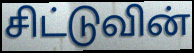
சிட்டுவின்